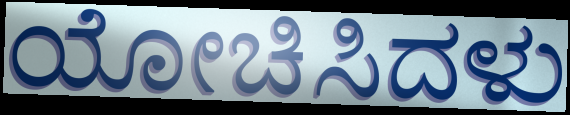
ಯೋಚಿಸಿದಳು